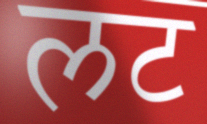
लट